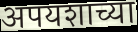
अपयशाच्या